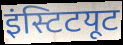
इंस्टिटयूट